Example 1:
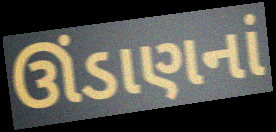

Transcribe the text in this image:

ઊંડાણનાં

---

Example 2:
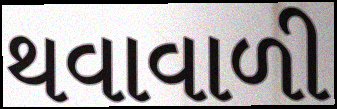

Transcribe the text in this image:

થવાવાળી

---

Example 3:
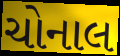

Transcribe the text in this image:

ચોનાલ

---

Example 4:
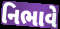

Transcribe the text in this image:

નિભાવે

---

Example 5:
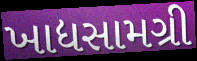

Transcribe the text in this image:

ખાદ્યસામગ્રી